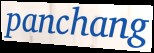
panchang